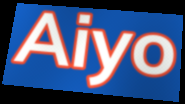
Aiyo